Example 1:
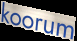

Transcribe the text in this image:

koorum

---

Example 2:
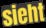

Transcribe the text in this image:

sieht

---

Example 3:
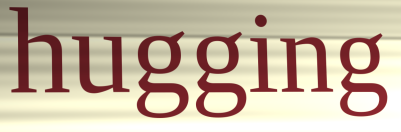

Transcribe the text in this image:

hugging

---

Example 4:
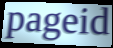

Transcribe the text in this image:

pageid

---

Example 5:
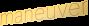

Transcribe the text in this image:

maneuver